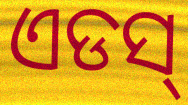
ଏଡସ୍